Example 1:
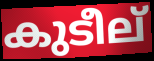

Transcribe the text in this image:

കുടീല്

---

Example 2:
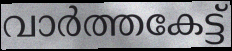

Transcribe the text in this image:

വാർത്തകേട്ട്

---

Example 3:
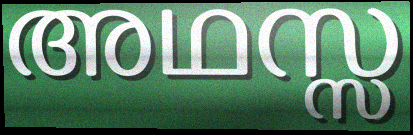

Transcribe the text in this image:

അഥസ്സ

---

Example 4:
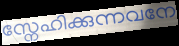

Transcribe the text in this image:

സ്നേഹിക്കുന്നവനേ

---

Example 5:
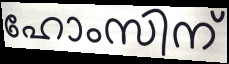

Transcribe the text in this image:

ഹോംസിന്